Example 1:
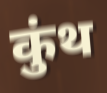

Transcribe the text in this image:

कुंथ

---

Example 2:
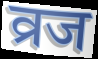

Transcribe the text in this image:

व्रज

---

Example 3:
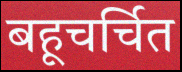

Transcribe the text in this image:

बहूचर्चित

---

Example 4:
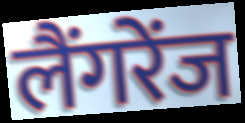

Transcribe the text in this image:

लैंगरेंज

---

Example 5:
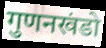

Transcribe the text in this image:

गुणनखंडो